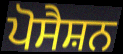
ਪੋਸੈਸ਼ਨ